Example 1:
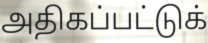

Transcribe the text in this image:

அதிகப்பட்டுக்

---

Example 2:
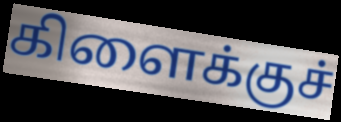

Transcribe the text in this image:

கிளைக்குச்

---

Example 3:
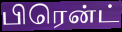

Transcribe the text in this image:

பிரென்ட்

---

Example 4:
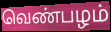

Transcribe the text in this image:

வெண்பழம்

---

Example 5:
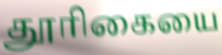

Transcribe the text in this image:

தூரிகையை